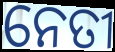
ନେତୀ